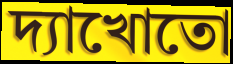
দ্যাখোতো